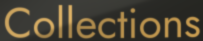
Collections